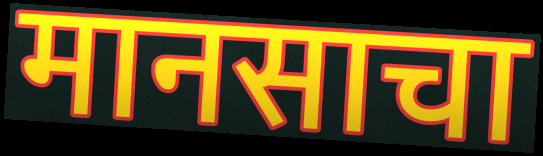
मानसाचा